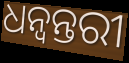
ଧନ୍ବନ୍ତରୀ